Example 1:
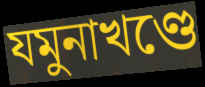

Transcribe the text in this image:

যমুনাখণ্ডে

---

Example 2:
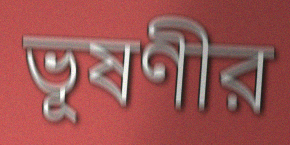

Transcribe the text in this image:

ভূষণীর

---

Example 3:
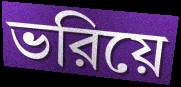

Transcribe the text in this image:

ভরিয়ে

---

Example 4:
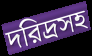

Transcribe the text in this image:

দরিদ্রসহ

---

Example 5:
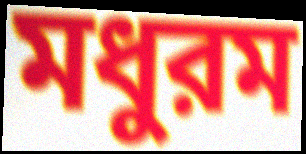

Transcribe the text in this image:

মধুরম